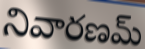
నివారణమ్